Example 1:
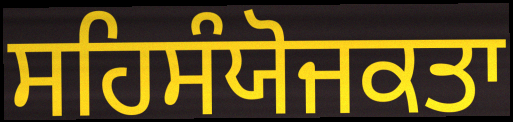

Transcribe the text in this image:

ਸਹਿਸੰਯੋਜਕਤਾ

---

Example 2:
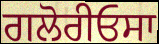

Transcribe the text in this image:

ਗਲੋਰੀਓਸਾ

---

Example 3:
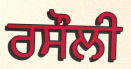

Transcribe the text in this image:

ਰਸੌਲੀ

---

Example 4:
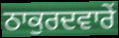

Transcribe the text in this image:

ਠਾਕੁਰਦਵਾਰੇਂ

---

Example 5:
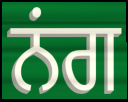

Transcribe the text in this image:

ਨਂਗ